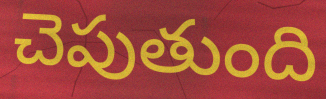
చెపుతుంది